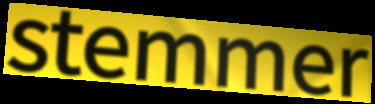
stemmer